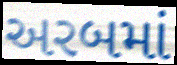
અરબમાં